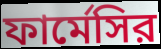
ফার্মেসির